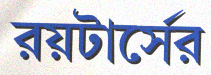
রয়টার্সের